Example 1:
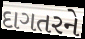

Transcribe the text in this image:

દાગતરને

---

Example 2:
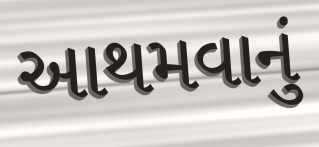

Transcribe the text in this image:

આથમવાનું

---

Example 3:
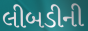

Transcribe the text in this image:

લીબડીની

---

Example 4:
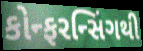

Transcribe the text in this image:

કોન્ફરન્સિંગથી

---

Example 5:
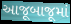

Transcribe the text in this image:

આજૂબાજૂમાં